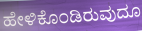
ಹೇಳಿಕೊಂಡಿರುವುದೂ